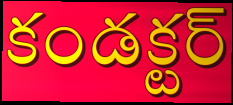
కండక్టర్